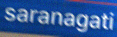
saranagati